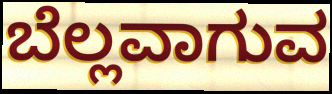
ಬೆಲ್ಲವಾಗುವ